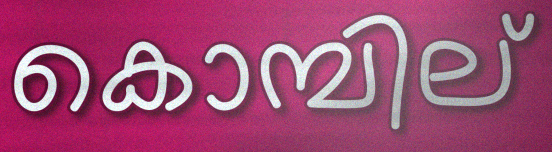
കൊമ്പില്